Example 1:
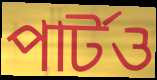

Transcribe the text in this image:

পার্টও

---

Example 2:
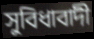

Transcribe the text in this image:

সুবিধাবাদী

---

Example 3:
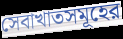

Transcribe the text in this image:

সেবাখাতসমূহের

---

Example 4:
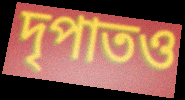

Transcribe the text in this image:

দৃপাতও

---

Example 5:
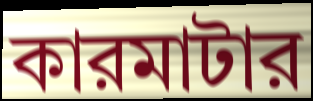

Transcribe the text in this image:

কারমাটার